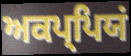
ਅਕਪ੍ਪਿਯਂ